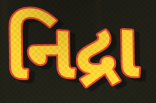
નિદ્રા